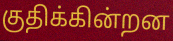
குதிக்கின்றன